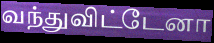
வந்துவிட்டேனா